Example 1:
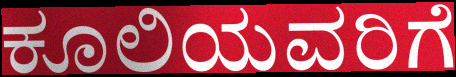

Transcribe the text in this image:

ಕೂಲಿಯವರಿಗೆ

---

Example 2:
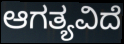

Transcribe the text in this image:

ಆಗತ್ಯವಿದೆ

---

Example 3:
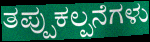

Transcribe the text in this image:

ತಪ್ಪುಕಲ್ಪನೆಗಳು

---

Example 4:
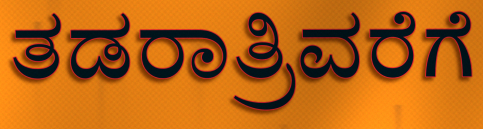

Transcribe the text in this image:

ತಡರಾತ್ರಿವರೆಗೆ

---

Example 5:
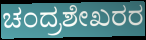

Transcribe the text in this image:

ಚಂದ್ರಶೇಖರರ